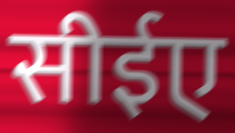
सीईए